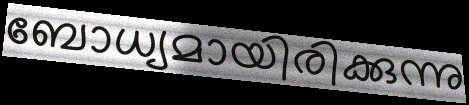
ബോധ്യമായിരിക്കുന്നു